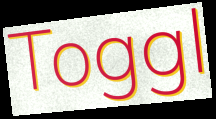
Toggl